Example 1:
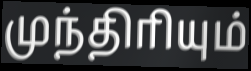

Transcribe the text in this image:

முந்திரியும்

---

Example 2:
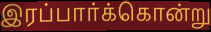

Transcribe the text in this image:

இரப்பார்க்கொன்று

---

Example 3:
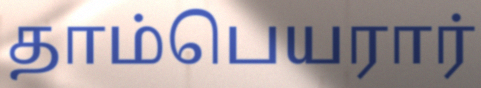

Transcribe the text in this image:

தாம்பெயரார்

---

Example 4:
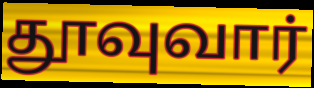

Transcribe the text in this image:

தூவுவார்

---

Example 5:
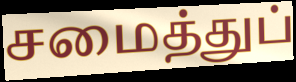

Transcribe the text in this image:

சமைத்துப்